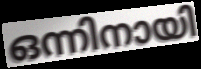
ഒന്നിനായി